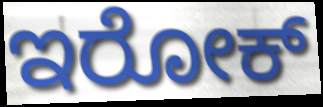
ಇರೋಕ್